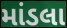
માંડલા